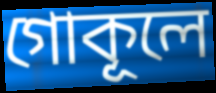
গোকূলে